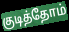
குடித்தோம்